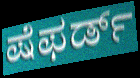
ಷೆಫರ್ಡ್